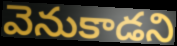
వెనుకాడని